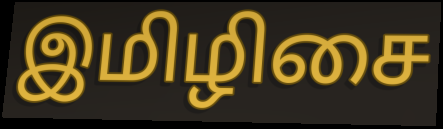
இமிழிசை